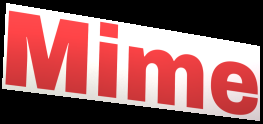
Mime